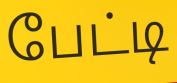
பேட்டி